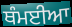
ਥੰਮਈਆ